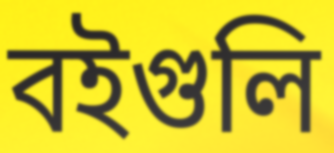
বইগুলি